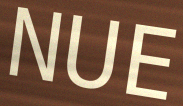
NUE